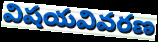
విషయవివరణ